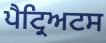
ਪੈਟ੍ਰਿਅਟਸ